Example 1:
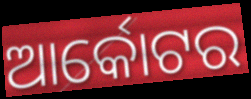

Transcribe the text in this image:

ଆର୍କୋଟର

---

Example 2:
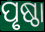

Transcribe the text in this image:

ପୃଷ୍ଠା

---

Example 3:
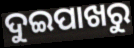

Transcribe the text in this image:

ଦୁଇପାଖରୁ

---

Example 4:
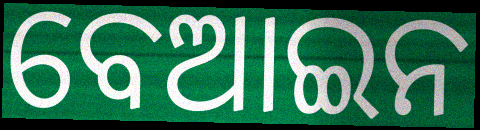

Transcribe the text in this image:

ବେଆଇନ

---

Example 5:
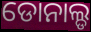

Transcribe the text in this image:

ଡୋନାଲ୍ଡ